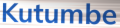
Kutumbe